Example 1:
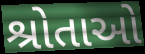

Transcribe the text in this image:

શ્રોતાઓ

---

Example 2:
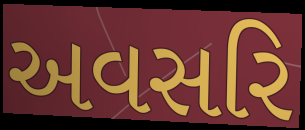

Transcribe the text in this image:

અવસરિ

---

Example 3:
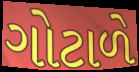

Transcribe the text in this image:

ગોટાળે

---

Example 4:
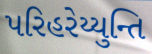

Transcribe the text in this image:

પરિહરેય્યુન્તિ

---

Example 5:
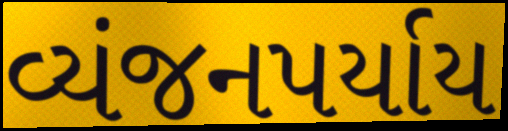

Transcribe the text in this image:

વ્યંજનપર્યાય